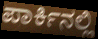
ಪಾರ್ಕಿನಲ್ಲಿ